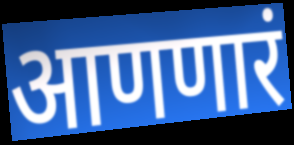
आणणारं